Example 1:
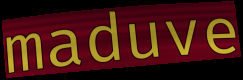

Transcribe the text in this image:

maduve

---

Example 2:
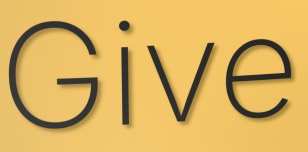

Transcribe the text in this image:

Give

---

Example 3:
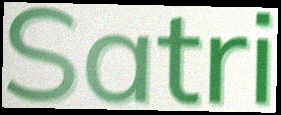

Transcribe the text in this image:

Satri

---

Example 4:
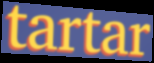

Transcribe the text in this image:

tartar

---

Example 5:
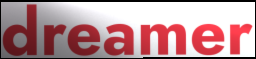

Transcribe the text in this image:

dreamer